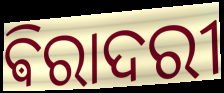
ଵିରାଦରୀ